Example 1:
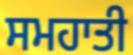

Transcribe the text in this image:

ਸਮਹਾਤੀ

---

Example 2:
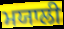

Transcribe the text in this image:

ਮਯਾਲੀ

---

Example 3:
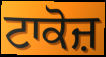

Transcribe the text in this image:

ਟਾਕੋਜ਼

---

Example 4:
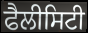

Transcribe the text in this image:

ਫੈਲੀਸਿਟੀ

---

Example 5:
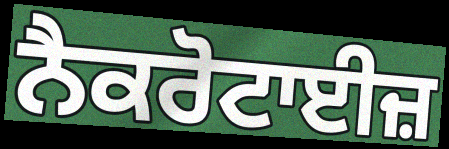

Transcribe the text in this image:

ਨੈਕਰੋਟਾਈਜ਼